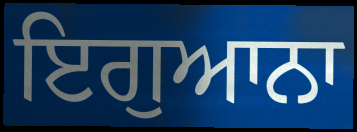
ਇਗੁਆਨਾ